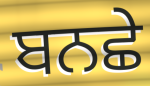
ਬਨਛੇ